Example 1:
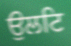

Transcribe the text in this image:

ਉਲਟਿ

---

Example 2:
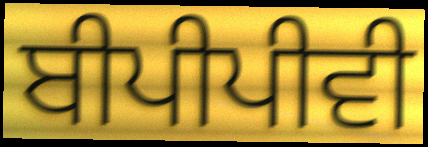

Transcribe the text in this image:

ਬੀਪੀਪੀਵੀ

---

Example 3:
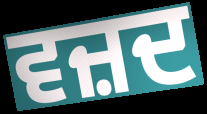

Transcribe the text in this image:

ਵਜ਼ਦ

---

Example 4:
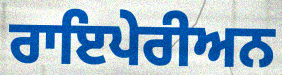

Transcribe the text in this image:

ਰਾਇਪੇਰੀਅਨ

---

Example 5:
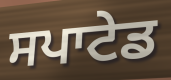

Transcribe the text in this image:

ਸਪਾਟੇਡ